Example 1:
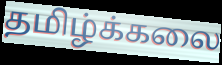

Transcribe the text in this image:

தமிழ்க்கலை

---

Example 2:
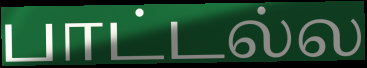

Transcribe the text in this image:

பாட்டல்ல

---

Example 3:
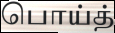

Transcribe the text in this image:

பொய்த்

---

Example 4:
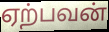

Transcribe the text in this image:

ஏற்பவன்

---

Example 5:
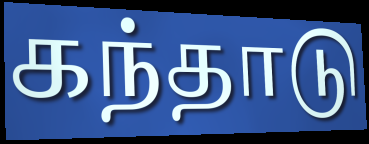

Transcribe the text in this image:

கந்தாடு